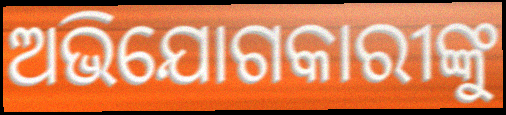
ଅଭିଯୋଗକାରୀଙ୍କୁ